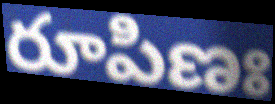
రూపిణః